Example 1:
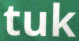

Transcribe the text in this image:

tuk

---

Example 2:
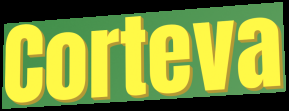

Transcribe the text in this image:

Corteva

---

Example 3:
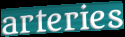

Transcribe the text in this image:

arteries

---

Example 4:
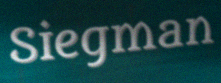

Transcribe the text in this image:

Siegman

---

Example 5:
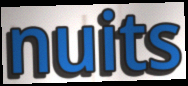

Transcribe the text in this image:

nuits